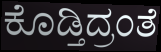
ಕೊಡ್ತಿದ್ರಂತೆ